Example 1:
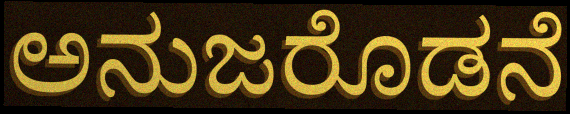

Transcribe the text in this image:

ಅನುಜರೊಡನೆ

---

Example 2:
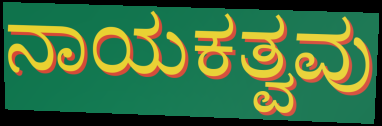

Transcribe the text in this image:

ನಾಯಕತ್ವವು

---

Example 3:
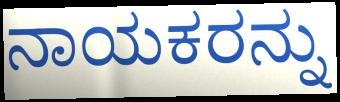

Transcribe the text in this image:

ನಾಯಕರನ್ನು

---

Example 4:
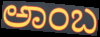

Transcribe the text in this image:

ಅಾಂಬ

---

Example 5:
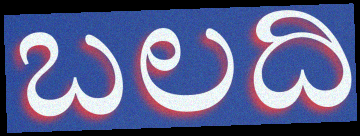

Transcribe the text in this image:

ಬಲದಿ